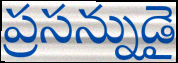
ప్రసన్నుడై